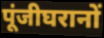
पूंजीघरानों